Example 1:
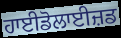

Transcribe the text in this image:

ਹਾਈਡੋਲਾਈਜ਼ਡ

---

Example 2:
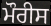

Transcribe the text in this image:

ਮੌਰੀਸ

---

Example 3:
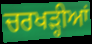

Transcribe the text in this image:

ਚਰਖੜ੍ਹੀਆਂ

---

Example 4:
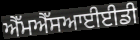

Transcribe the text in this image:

ਐੱਮਐੱਸਆਈਈਡੀ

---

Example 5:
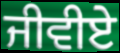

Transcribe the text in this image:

ਜੀਵੀਏ